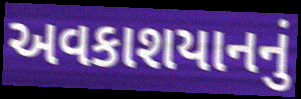
અવકાશયાનનું